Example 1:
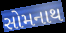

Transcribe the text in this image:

સોમનાથ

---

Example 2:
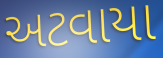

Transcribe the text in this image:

અટવાયા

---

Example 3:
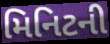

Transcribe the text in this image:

મિનિટની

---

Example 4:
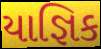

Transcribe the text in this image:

યાજ્ઞિક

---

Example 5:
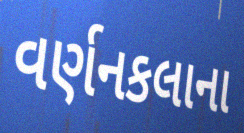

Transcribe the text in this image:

વર્ણનકલાના